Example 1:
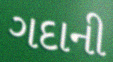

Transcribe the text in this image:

ગદાની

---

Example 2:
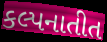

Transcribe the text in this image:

કલ્પનાતીત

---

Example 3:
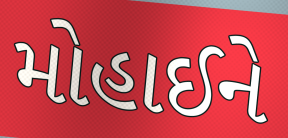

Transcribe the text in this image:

મોહાઈને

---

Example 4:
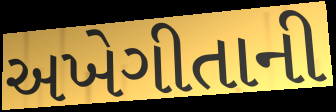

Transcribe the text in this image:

અખેગીતાની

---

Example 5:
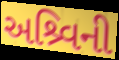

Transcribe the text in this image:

અશ્ર્વિની